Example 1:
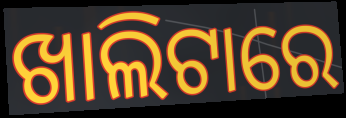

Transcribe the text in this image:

ଖାଲିଟାରେ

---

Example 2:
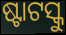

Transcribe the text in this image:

ଷ୍ଟାଟସ୍କୁ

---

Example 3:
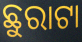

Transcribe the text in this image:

ଛୁରାଟା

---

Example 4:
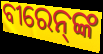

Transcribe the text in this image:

ବୀରେନ୍‍ଙ୍କ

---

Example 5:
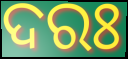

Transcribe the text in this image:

ଦରଃ